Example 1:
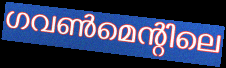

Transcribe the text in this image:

ഗവൺമെന്റിലെ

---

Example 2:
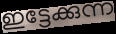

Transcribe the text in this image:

ഇട്ടേക്കുന്ന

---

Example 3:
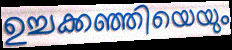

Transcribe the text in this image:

ഉച്ചക്കഞ്ഞിയെയും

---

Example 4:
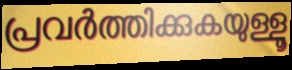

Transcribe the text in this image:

പ്രവർത്തിക്കുകയുള്ളൂ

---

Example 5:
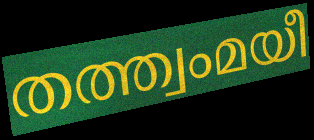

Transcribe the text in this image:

തത്ത്വംമയീ